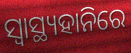
ସ୍ୱାସ୍ଥ୍ୟହାନିରେ